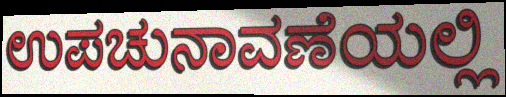
ಉಪಚುನಾವಣೆಯಲ್ಲಿ